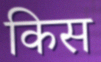
किस